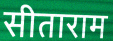
सीताराम